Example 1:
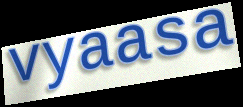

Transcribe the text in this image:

vyaasa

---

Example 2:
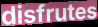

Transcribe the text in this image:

disfrutes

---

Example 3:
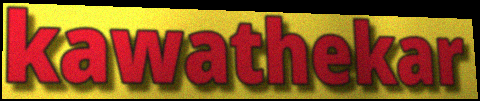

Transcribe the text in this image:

kawathekar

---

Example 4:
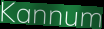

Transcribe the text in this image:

Kannum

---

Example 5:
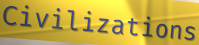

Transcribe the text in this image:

Civilizations